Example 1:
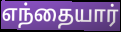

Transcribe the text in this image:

எந்தையார்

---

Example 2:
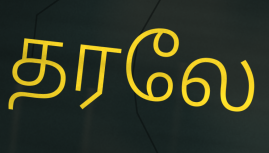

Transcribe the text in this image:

தரலே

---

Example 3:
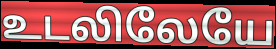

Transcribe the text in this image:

உடலிலேயே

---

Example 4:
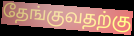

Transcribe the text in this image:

தேங்குவதற்கு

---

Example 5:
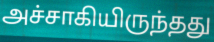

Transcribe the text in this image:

அச்சாகியிருந்தது